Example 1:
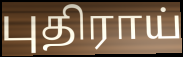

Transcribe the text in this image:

புதிராய்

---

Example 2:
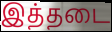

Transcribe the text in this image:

இத்தடை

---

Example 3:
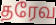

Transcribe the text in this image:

தரேவ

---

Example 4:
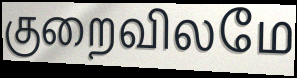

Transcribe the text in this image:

குறைவிலமே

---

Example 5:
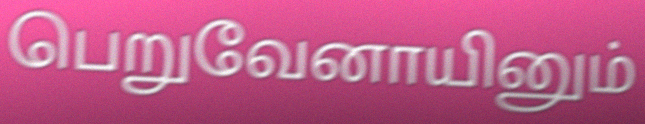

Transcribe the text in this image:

பெறுவேனாயினும்